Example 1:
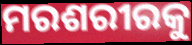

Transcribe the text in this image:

ମରଶରୀରକୁ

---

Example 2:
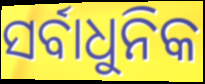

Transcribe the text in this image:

ସର୍ବାଧୁନିକ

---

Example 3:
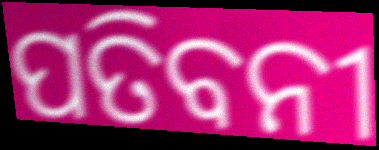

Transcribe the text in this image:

ପତିବନୀ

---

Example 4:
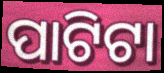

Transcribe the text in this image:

ପାଟିଟା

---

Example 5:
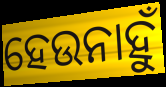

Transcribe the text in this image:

ହେଉନାହୁଁ